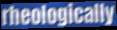
rheologically